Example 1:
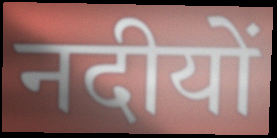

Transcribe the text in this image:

नदीयों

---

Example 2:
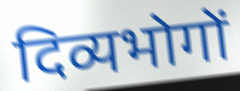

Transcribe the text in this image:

दिव्यभोगों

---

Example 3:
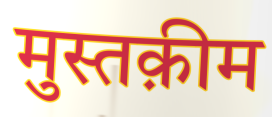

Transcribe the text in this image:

मुस्तक़ीम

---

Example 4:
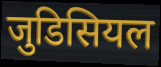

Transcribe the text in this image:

जुडिसियल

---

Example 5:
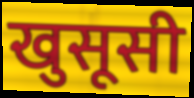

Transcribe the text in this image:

खुसूसी